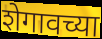
शेगावच्या